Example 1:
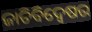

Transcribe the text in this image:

ଜାତିବିଦ୍ୱେଷର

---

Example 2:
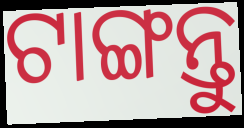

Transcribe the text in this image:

ଟାଙ୍ଗନ୍ତୁ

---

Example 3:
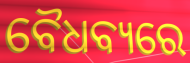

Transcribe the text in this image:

ବୈଧବ୍ୟରେ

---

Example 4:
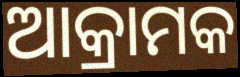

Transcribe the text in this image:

ଆକ୍ରାମକ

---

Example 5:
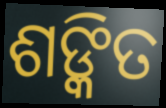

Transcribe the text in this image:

ଶଙ୍କିତ